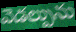
వెడల్పును